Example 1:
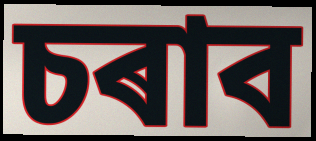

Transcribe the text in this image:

চৰাব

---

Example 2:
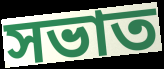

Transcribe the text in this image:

সভাত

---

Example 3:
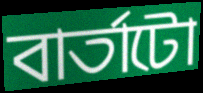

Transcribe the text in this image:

বাৰ্তাটো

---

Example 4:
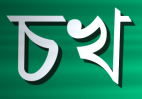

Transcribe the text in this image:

চখ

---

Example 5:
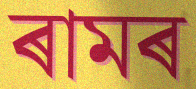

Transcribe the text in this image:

ৰামৰ